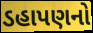
ડહાપણનો